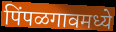
पिंपळगावमध्ये